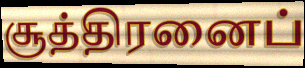
சூத்திரனைப்